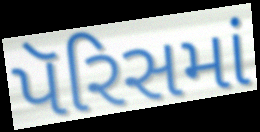
પૅરિસમાં